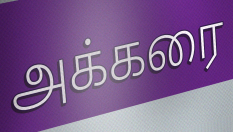
அக்கரை